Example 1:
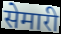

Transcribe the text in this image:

सेमारी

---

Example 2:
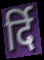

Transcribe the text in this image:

र्दि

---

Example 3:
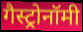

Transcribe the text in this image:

गैस्ट्रोनॉमी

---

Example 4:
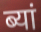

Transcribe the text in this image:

ब्यां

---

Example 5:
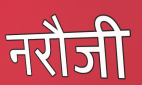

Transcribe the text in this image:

नरौजी